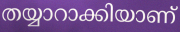
തയ്യാറാക്കിയാണ്